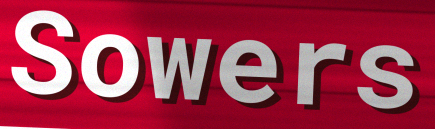
Sowers